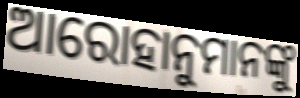
ଆରୋହାନୁମାନଙ୍କୁ